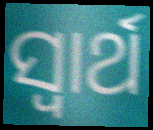
ସ୍ୱାର୍ଥ